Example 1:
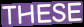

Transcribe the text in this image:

THESE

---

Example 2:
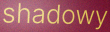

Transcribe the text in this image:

shadowy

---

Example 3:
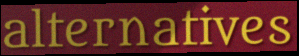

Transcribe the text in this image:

alternatives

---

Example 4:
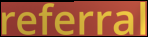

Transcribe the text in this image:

referral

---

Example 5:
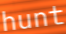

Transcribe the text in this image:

hunt